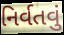
નિર્વતવું